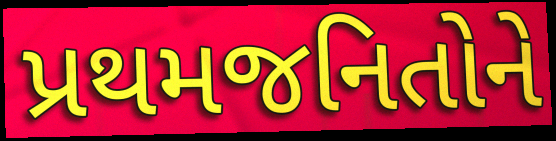
પ્રથમજનિતોને